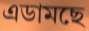
এডামছে